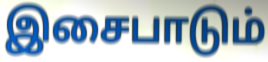
இசைபாடும்